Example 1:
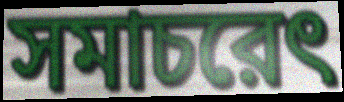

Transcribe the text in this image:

সমাচরেৎ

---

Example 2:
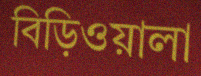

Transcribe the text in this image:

বিড়িওয়ালা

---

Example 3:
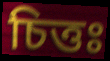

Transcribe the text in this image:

চিত্তঃ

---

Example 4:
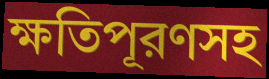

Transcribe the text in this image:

ক্ষতিপূরণসহ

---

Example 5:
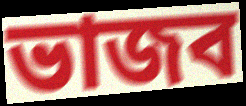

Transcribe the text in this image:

ভাজব